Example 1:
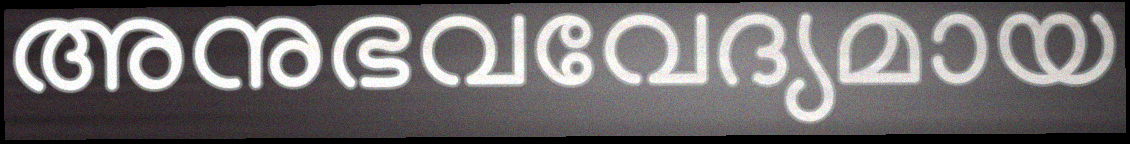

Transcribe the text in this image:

അനുഭവവേദ്യമായ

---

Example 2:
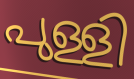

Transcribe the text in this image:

പുള്ളി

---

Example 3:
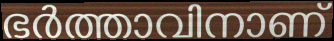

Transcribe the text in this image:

ഭർത്താവിനാണ്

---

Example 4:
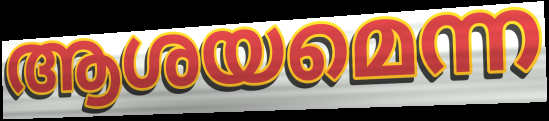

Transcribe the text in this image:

ആശയമെന്ന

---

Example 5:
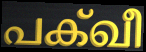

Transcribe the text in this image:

പക്ഖീ